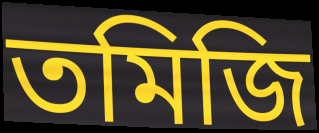
তমিজি